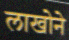
लाखोने